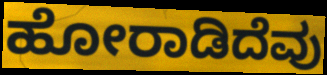
ಹೋರಾಡಿದೆವು